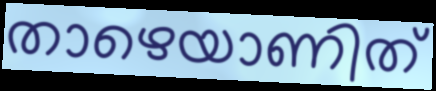
താഴെയാണിത്